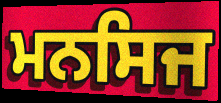
ਮਨਸਿਜ